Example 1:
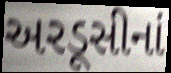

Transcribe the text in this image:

અરડૂસીનાં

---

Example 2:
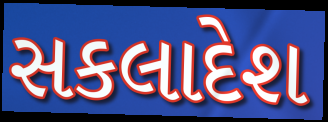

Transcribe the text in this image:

સકલાદેશ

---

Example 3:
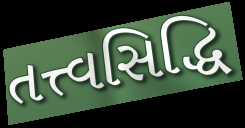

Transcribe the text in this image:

તત્ત્વસિદ્ધિ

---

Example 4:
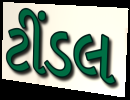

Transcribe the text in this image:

ટીંડલ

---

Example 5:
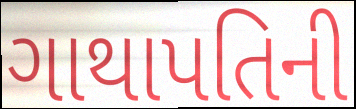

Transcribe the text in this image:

ગાથાપતિની